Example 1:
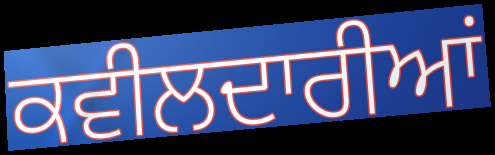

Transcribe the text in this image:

ਕਵੀਲਦਾਰੀਆਂ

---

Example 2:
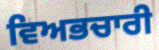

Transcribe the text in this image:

ਵਿਅਭਚਾਰੀ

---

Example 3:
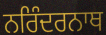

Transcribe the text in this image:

ਨਰਿੰਦਰਨਾਥ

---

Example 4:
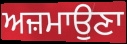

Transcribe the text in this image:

ਅਜ਼ਮਾਉਣਾ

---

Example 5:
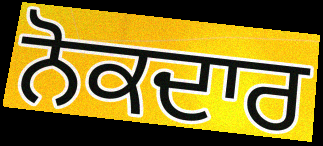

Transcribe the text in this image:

ਨੋਕਦਾਰ